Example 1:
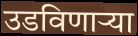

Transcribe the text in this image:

उडविणार्‍या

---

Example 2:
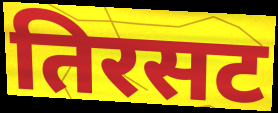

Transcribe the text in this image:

तिरसट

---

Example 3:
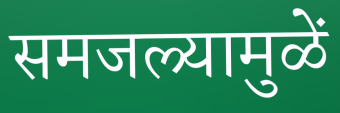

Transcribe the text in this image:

समजल्यामुळें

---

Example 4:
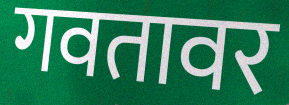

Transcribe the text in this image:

गवतावर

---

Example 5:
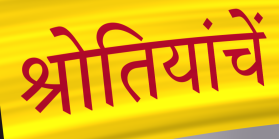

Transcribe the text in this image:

श्रोतियांचें